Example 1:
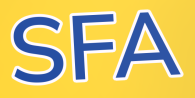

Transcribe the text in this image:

SFA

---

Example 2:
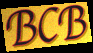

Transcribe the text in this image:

BCB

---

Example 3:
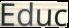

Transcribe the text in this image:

Educ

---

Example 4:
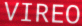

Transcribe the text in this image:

VIREO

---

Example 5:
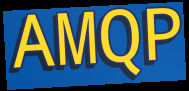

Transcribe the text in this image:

AMQP